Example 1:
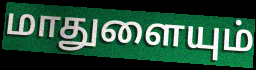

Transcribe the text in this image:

மாதுளையும்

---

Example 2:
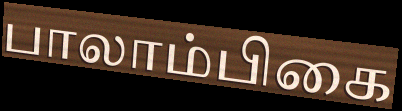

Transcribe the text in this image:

பாலாம்பிகை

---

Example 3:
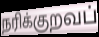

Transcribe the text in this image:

நரிக்குறவப்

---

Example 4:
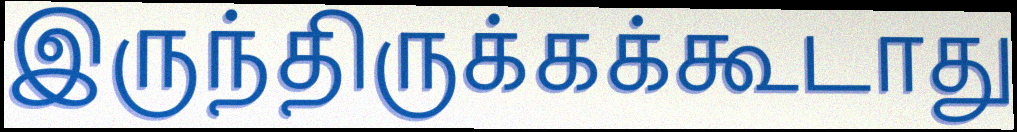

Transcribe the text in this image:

இருந்திருக்கக்கூடாது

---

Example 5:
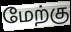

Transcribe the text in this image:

மேற்கு